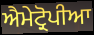
ਐਮੇਟ੍ਰੋਪੀਆ